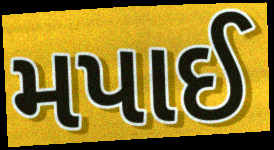
મપાઈ